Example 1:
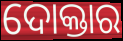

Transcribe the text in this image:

ଦୋକ୍ତାର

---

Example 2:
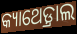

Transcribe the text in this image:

କ୍ୟାଥେଡ଼୍ରାଲ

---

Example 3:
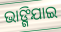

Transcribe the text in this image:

ଭାଙ୍ଗିଯାଇ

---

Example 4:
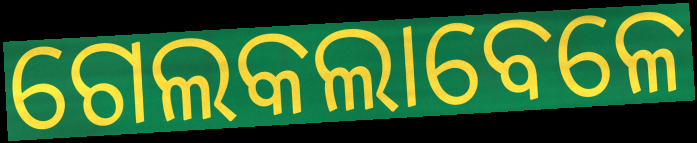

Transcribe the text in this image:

ଗେଲକଲାବେଳେ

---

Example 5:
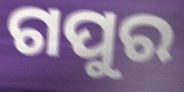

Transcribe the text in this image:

ଗପୁର